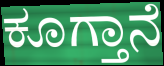
ಕೂಗ್ತಾನೆ